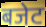
बजेट